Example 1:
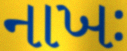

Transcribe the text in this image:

નાખઃ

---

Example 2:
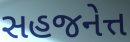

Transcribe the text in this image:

સહજનેત્ત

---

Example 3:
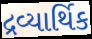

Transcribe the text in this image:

દ્રવ્યાર્થિક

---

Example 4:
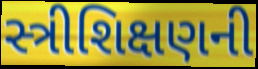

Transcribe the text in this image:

સ્ત્રીશિક્ષણની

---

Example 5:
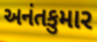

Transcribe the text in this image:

અનંતકુમાર